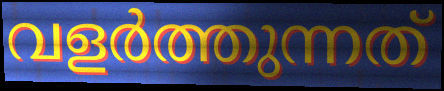
വളർത്തുന്നത്